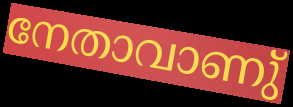
നേതാവാണു്